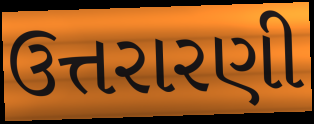
ઉત્તરારણી